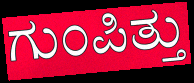
ಗುಂಪಿತ್ತು